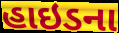
હાઇડના